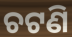
ଚଟଣି